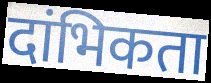
दांभिकता